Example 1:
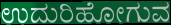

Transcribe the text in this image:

ಉದುರಿಹೋಗುವ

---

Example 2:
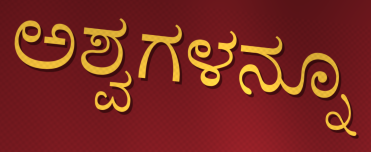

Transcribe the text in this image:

ಅಶ್ವಗಳನ್ನೂ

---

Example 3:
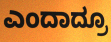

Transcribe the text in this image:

ಎಂದಾದ್ರೂ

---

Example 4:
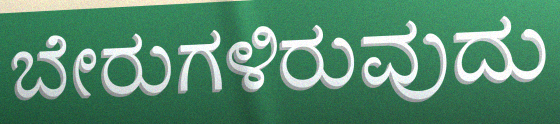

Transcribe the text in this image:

ಬೇರುಗಳಿರುವುದು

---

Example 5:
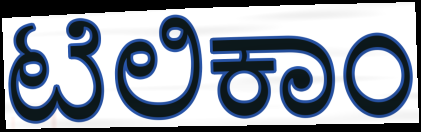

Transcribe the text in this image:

ಟೆಲಿಕಾಂ